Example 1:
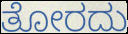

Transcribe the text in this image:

ತೋರದು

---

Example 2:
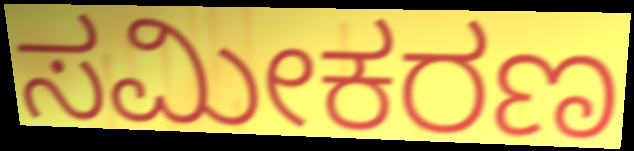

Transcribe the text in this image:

ಸಮೀಕರಣ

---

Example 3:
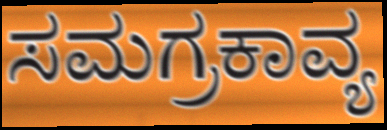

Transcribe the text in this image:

ಸಮಗ್ರಕಾವ್ಯ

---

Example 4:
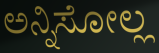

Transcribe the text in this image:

ಅನ್ನಿಸೋಲ್ಲ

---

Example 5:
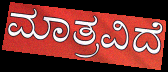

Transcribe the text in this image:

ಮಾತ್ರವಿದೆ